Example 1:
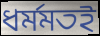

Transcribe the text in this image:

ধর্মমতই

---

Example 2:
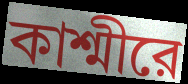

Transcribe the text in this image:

কাশ্মীরে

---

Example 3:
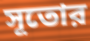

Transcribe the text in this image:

সূতোর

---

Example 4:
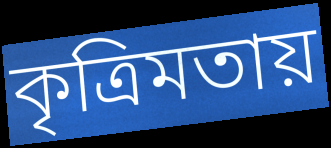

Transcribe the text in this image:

কৃত্রিমতায়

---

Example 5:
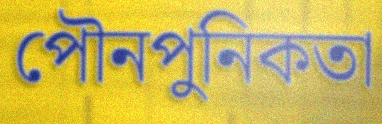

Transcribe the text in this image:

পৌনপুনিকতা